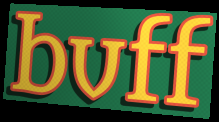
buff